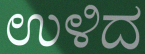
ಉಳಿದ